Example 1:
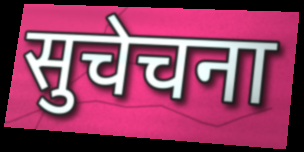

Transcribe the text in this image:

सुचेचना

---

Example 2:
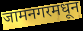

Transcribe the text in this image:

जामनगरमधून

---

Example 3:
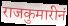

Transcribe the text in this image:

राजकुमारीनं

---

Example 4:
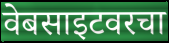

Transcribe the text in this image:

वेबसाइटवरचा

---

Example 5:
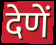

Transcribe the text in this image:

देणें